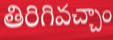
తిరిగివచ్చాం